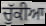
ਚੁੱਕੀਆ